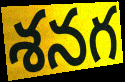
శనగ